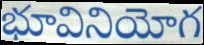
భూవినియోగ